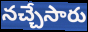
నచ్చేసారు